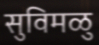
सुविमळु